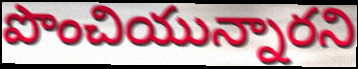
పొంచియున్నారని